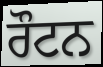
ਰੌਟਨ